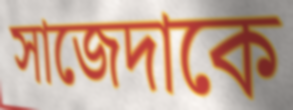
সাজেদাকে